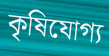
কৃষিযোগ্য